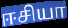
ஈசியா